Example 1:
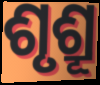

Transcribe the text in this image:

ଶୃଶ୍ରୂ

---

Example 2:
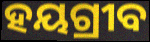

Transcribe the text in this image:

ହୟଗ୍ରୀବ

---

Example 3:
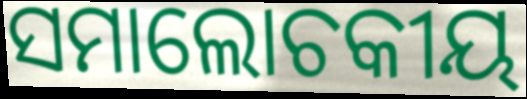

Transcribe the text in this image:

ସମାଲୋଚକୀୟ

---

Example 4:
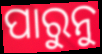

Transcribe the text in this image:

ପାରୁନୁ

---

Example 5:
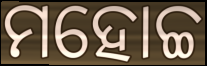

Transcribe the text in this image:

ମହୋଚ୍ଚ